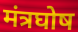
मंत्रघोष